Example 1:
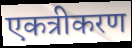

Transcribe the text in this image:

एकत्रीकरण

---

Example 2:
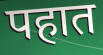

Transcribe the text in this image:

पहात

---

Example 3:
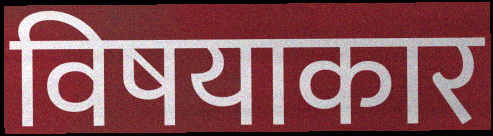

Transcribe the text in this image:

विषयाकार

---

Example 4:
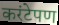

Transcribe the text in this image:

करंटेपण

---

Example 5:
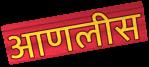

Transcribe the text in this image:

आणलीस